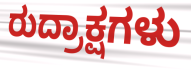
ರುದ್ರಾಕ್ಷಗಳು